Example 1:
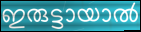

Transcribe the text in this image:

ഇരുട്ടായാൽ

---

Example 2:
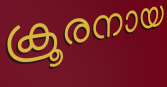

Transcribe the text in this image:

ക്രൂരനായ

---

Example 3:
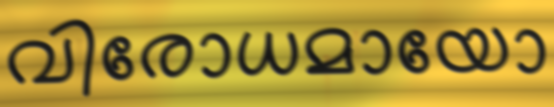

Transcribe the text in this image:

വിരോധമായോ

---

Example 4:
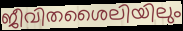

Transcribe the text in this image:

ജീവിതശൈലിയിലും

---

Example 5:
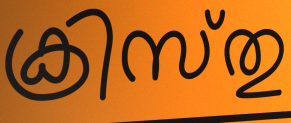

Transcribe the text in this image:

ക്രിസ്‌തു